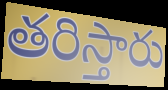
తరిస్తారు